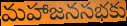
మహాజనసభకు